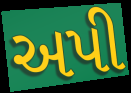
અપી